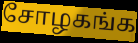
சோழகங்க